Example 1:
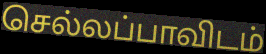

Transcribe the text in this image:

செல்லப்பாவிடம்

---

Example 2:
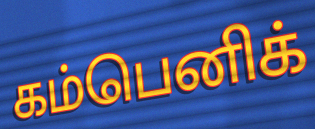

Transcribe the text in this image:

கம்பெனிக்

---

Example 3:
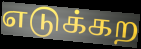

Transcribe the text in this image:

எடுக்கற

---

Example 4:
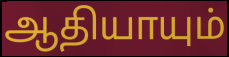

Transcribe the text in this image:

ஆதியாயும்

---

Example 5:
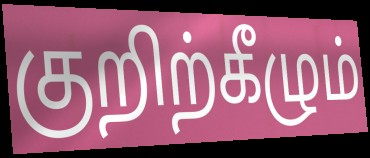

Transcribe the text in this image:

குறிற்கீழும்